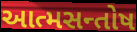
આત્મસન્તોષ